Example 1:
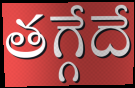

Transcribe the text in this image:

తగ్గేదే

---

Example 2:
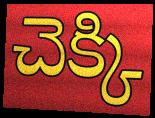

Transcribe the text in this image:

చెక్కి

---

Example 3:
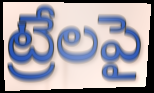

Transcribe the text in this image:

ట్రేలపై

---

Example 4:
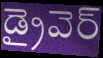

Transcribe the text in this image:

డ్రైవెర్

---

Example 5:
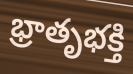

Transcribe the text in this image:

భ్రాతృభక్తి